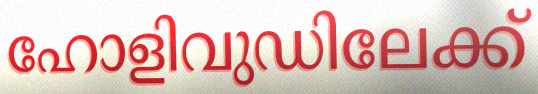
ഹോളിവുഡിലേക്ക്